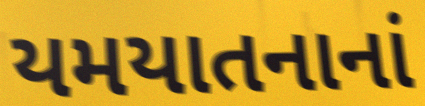
યમયાતનાનાં